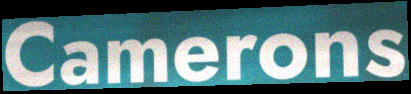
Camerons